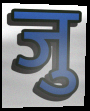
जु